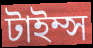
টাইম্স